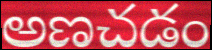
అణచడం